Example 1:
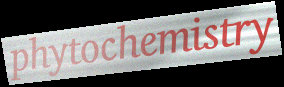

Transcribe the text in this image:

phytochemistry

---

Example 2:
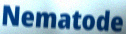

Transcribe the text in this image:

Nematode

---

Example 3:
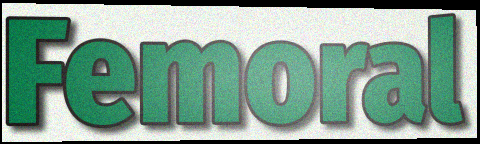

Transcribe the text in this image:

Femoral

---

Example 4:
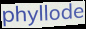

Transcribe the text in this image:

phyllode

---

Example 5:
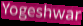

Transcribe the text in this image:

Yogeshwar